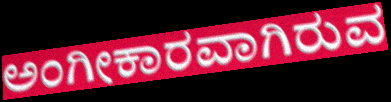
ಅಂಗೀಕಾರವಾಗಿರುವ